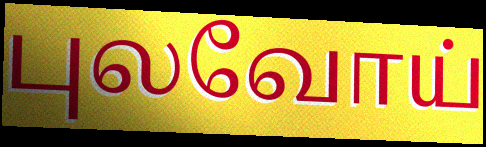
புலவோய்